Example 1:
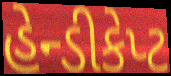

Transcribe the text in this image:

હેન્ડીકેપ્ટ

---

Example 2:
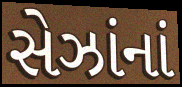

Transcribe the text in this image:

સેઝાંનાં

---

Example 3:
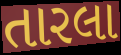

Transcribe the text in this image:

તારલા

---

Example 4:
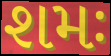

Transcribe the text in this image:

શમઃ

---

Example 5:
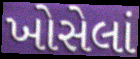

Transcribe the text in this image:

ખોસેલાં